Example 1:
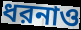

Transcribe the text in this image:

ধরনাও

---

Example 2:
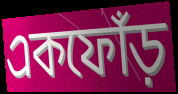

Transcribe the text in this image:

একফোঁড়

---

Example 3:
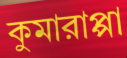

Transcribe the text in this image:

কুমারাপ্পা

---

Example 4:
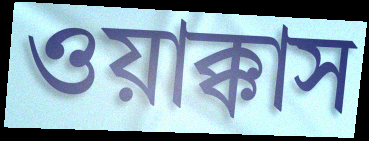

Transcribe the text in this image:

ওয়াক্কাস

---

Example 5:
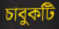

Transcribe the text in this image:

চাবুকটি